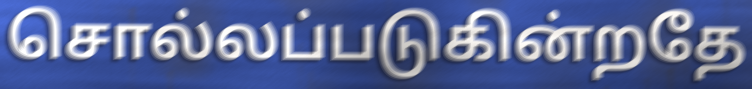
சொல்லப்படுகின்றதே